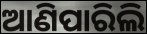
ଆଣିପାରିଲି